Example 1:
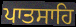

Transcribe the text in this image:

ਪਾਤਸਾਹਿ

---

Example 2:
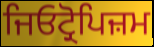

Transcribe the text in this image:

ਜਿਓਟ੍ਰੋਪਿਜ਼ਮ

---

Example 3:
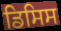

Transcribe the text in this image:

ਡਿਸਿਸ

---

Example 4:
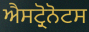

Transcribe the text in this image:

ਐਸਟ੍ਰੋਨੋਟਸ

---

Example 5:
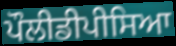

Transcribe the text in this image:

ਪੌਲੀਡੀਪੀਸਿਆ